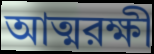
আত্মরক্ষী